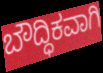
ಬೌದ್ಧಿಕವಾಗಿ